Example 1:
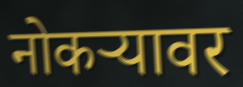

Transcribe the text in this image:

नोकऱ्यावर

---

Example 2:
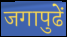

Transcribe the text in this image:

जगापुढें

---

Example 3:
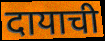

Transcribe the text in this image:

दायाची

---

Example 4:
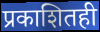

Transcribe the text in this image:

प्रकाशितही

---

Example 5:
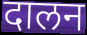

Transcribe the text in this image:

दालन